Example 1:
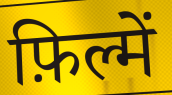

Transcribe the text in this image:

फ़िल्में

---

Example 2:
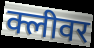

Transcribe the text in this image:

क्लीवर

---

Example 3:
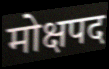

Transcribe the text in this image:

मोक्षपद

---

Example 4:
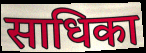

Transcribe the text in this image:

साधिका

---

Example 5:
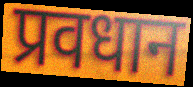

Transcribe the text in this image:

प्रवधान